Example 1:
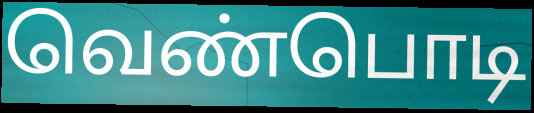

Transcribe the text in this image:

வெண்பொடி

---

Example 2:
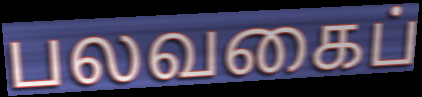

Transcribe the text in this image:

பலவகைப்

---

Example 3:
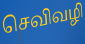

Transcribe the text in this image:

செவிவழி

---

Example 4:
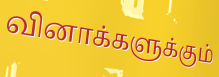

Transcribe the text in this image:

வினாக்களுக்கும்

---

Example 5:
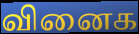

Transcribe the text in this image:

வினைக